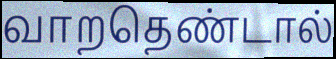
வாறதெண்டால்